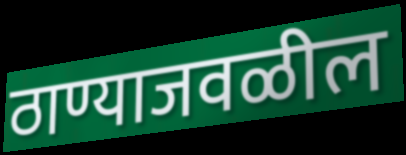
ठाण्याजवळील